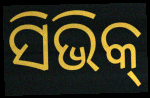
ସିଭିକ୍